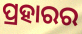
ପ୍ରହାରର